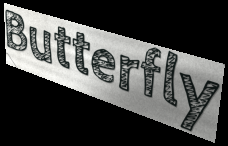
Butterfly